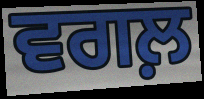
ਵਗਲ਼